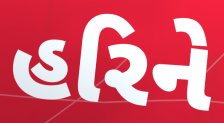
હરિને